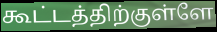
கூட்டத்திற்குள்ளே